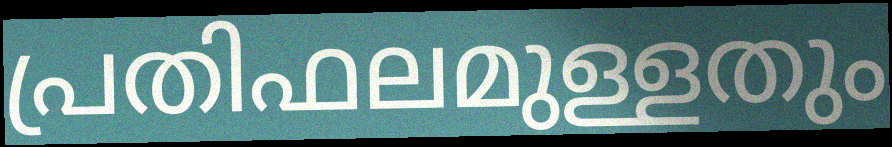
പ്രതിഫലമുള്ളതും